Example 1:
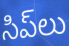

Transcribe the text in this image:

సిప్‌లు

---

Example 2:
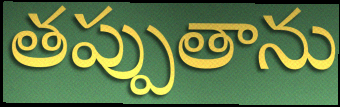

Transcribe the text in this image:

తప్పుతాను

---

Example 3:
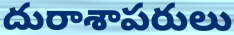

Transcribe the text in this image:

దురాశాపరులు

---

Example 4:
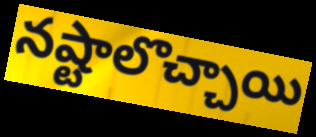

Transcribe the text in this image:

నష్టాలొచ్చాయి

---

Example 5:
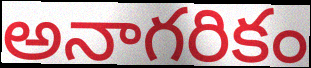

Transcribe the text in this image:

అనాగరికం